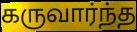
கருவார்ந்த